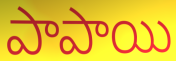
పాపాయి